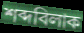
শব্দবিলাক